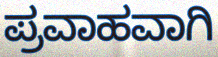
ಪ್ರವಾಹವಾಗಿ